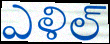
ఎళిల్